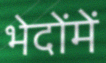
भेदोंमें